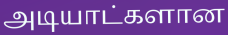
அடியாட்களான